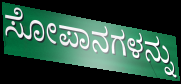
ಸೋಪಾನಗಳನ್ನು